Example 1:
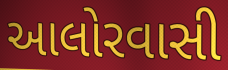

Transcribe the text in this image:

આલોરવાસી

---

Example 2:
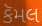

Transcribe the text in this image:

કૅમલ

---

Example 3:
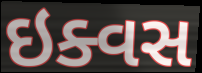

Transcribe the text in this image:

ઇક્વસ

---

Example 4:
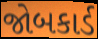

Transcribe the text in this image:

જોબકાર્ડ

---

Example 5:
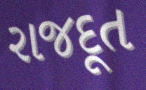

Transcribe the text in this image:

રાજદૂત